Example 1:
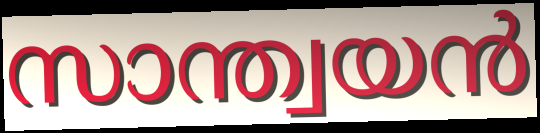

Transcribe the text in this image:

സാന്ത്വയൻ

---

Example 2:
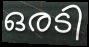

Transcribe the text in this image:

ഒരടി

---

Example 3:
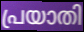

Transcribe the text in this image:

പ്രയാതി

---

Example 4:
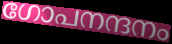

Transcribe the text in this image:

ഗോപനന്ദനം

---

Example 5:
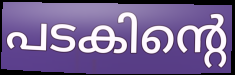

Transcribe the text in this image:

പടകിന്റെ